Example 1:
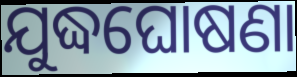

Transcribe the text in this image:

ଯୁଦ୍ଧଘୋଷଣା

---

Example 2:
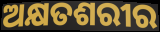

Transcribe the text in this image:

ଅକ୍ଷତଶରୀର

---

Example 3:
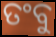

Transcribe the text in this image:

ତଂବୁ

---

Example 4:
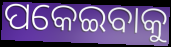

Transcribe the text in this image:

ପକେଇବାକୁ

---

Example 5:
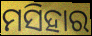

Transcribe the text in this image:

ମସିହାର